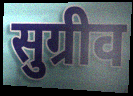
सुग्रीव